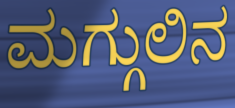
ಮಗ್ಗುಲಿನ